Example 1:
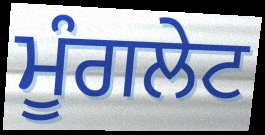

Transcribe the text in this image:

ਮੂੰਗਲੇਟ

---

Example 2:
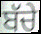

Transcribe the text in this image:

ਬੱਚੇ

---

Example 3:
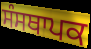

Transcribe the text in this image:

ਸੰਸਥਾਪਕ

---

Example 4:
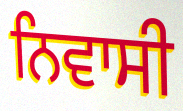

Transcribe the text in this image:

ਨਿਵਾਸੀ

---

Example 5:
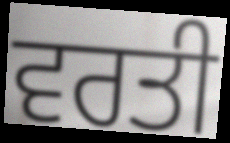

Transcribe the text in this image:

ਵਰਤੀ